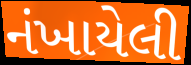
નંખાયેલી